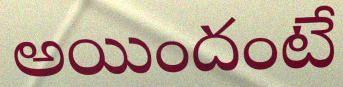
అయిందంటే